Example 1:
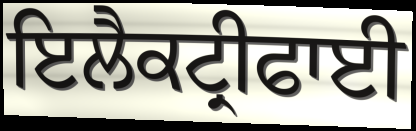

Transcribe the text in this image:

ਇਲੈਕਟ੍ਰੀਫਾਈ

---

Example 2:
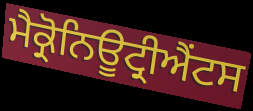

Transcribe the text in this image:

ਮੈਕ੍ਰੋਨਿਊਟ੍ਰੀਐਂਟਸ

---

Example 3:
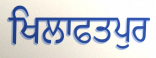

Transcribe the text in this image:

ਖਿਲਾਫਤਪੁਰ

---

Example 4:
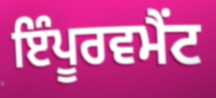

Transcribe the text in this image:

ਇੰਪੂਰਵਮੈਂਟ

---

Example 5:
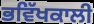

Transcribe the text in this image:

ਭਵਿੱਖਕਾਲੀ